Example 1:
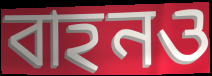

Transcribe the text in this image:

বাহনও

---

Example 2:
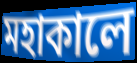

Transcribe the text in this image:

মহাকালে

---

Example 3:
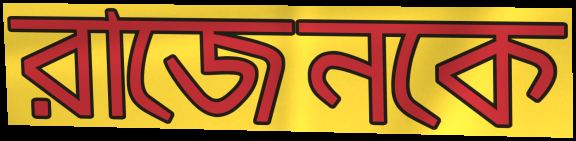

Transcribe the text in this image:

রাজেনকে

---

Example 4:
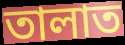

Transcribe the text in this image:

তালাত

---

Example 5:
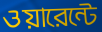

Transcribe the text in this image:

ওয়ারেন্টে